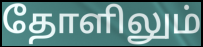
தோளிலும்